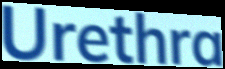
Urethra